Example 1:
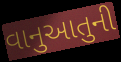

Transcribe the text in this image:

વાનુઆતુની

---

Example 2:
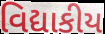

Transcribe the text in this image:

વિદ્યાકીય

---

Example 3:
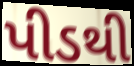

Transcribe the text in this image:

પીડથી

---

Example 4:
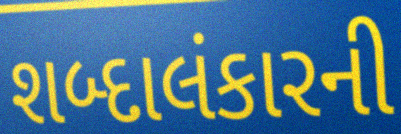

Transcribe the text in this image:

શબ્દાલંકારની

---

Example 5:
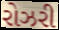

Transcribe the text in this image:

રોઝરી